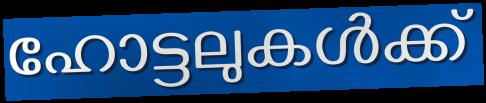
ഹോട്ടലുകൾക്ക്